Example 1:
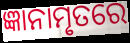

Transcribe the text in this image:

ଜ୍ଞାନାମୃତରେ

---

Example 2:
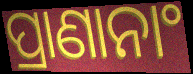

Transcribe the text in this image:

ପ୍ରାଣାନାଂ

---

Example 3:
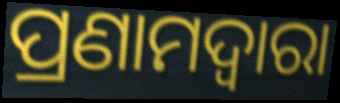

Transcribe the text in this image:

ପ୍ରଣାମଦ୍ୱାରା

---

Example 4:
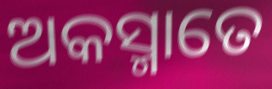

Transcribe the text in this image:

ଅକସ୍ମାତେ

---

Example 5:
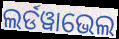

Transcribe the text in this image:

ଲର୍ଡୱାଭେଲ